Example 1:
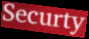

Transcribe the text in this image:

Securty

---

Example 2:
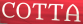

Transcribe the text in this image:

COTTA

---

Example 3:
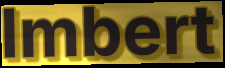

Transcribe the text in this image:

Imbert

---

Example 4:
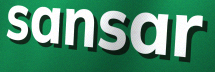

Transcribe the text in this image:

sansar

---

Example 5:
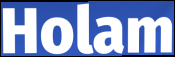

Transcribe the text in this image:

Holam